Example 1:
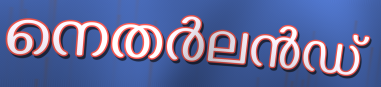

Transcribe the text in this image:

നെതർലൻഡ്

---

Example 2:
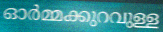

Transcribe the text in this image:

ഓർമ്മക്കുറവുള്ള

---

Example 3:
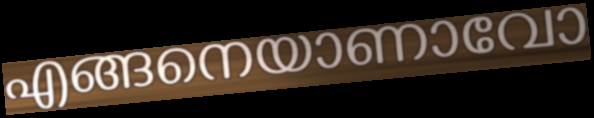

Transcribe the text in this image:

എങ്ങനെയാണാവോ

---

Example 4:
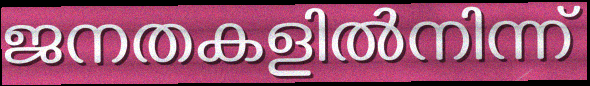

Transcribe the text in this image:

ജനതകളിൽനിന്ന്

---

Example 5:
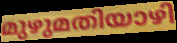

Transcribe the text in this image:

മുഴുമതിയാഴി